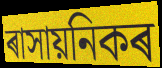
ৰাসায়নিকৰ